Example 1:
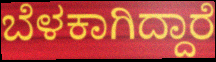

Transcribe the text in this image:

ಬೆಳಕಾಗಿದ್ದಾರೆ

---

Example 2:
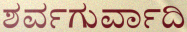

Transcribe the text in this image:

ಶರ್ವಗುರ್ವಾದಿ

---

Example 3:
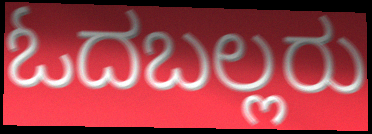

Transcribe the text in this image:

ಓದಬಲ್ಲರು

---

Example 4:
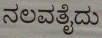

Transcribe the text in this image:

ನಲವತೈದು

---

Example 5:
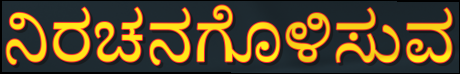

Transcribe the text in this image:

ನಿರಚನಗೊಳಿಸುವ